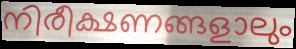
നിരീക്ഷണങ്ങളാലും